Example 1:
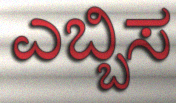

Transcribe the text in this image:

ಎಬ್ಬಿಸ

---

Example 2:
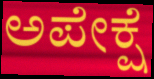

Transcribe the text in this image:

ಅಪೇಕ್ಷೆ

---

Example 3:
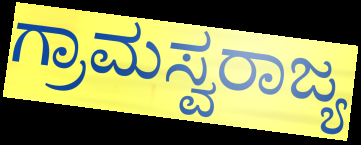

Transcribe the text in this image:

ಗ್ರಾಮಸ್ವರಾಜ್ಯ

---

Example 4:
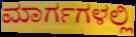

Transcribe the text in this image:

ಮಾರ್ಗಗಳಲ್ಲಿ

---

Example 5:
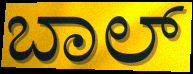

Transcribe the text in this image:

ಬಾಲ್